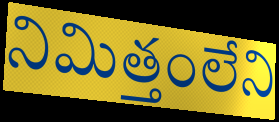
నిమిత్తంలేని